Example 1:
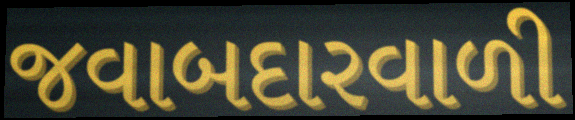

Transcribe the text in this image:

જવાબદારવાળી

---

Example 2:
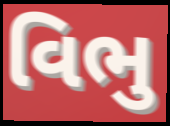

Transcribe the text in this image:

વિભુ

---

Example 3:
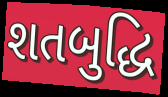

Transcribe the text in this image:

શતબુદ્ધિ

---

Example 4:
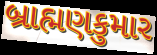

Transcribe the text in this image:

બ્રાહ્મણકુમાર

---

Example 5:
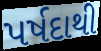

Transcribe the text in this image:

પર્ષદાથી